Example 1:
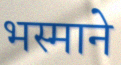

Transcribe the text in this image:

भस्माने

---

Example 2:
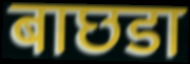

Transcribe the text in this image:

बाछडा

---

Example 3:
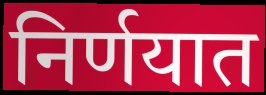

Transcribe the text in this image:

निर्णयात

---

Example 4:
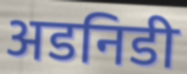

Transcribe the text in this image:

अडनिडी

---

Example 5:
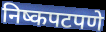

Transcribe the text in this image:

निष्कपटपणे